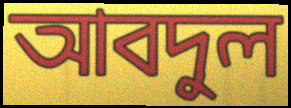
আবদুল